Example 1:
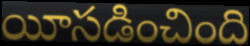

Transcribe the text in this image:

యీసడించింది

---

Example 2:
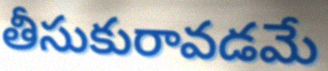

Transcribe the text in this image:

తీసుకురావడమే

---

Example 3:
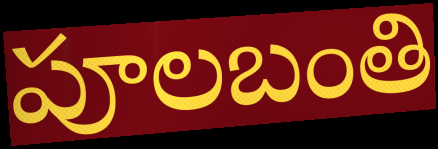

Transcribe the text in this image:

పూలబంతి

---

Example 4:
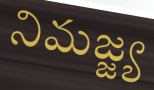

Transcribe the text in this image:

నిమజ్జ్య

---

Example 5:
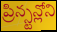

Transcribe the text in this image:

ప్రిన్స్టన్లోని